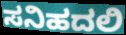
ಸನಿಹದಲಿ